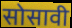
सोसावी